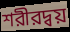
শরীরদ্বয়